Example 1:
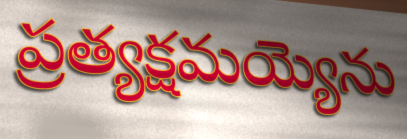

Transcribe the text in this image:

ప్రత్యక్షమయ్యెను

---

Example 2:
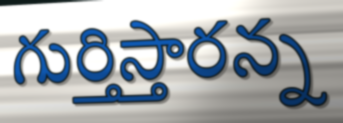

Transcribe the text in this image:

గుర్తిస్తారన్న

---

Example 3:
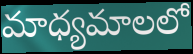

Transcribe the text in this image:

మాధ్యమాలలో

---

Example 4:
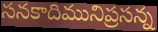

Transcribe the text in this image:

సనకాదిమునిప్రసన్న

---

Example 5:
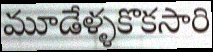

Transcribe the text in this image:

మూడేళ్ళకొకసారి